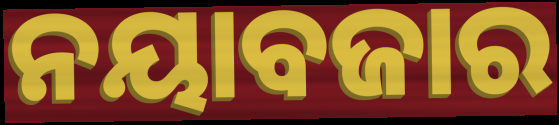
ନୟାବଜାର